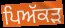
ਪਿਅੱਕੜ